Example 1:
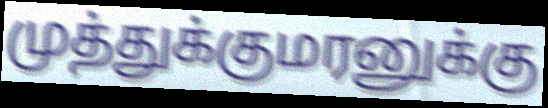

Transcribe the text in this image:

முத்துக்குமரனுக்கு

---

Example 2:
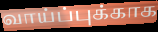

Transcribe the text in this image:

வாய்ப்புக்காக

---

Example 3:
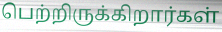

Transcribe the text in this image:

பெற்றிருக்கிறார்கள்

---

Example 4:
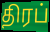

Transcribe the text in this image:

திரப்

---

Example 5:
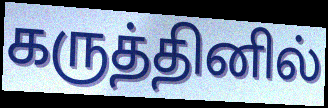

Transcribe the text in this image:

கருத்தினில்